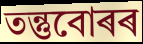
তন্তুবোৰৰ